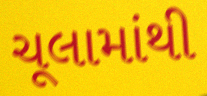
ચૂલામાંથી